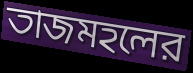
তাজমহলের